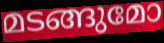
മടങ്ങുമോ